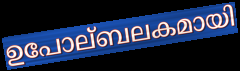
ഉപോല്ബലകമായി